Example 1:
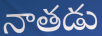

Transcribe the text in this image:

నాతడు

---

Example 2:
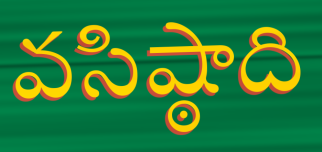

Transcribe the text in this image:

వసిష్ఠాది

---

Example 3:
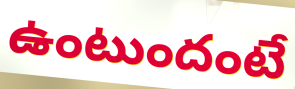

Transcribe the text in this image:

ఉంటుందంటే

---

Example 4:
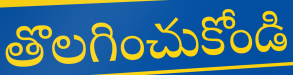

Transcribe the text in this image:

తొలగించుకోండి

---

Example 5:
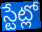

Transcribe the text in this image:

స్టేట్లో